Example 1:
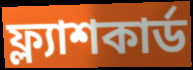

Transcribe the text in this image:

ফ্ল্যাশকার্ড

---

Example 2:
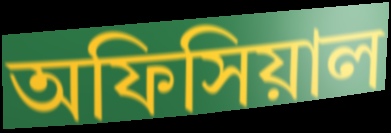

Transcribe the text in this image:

অফিসিয়াল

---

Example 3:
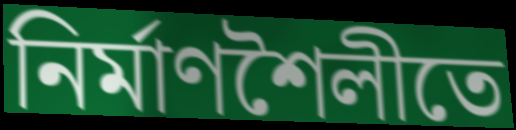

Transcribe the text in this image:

নির্মাণশৈলীতে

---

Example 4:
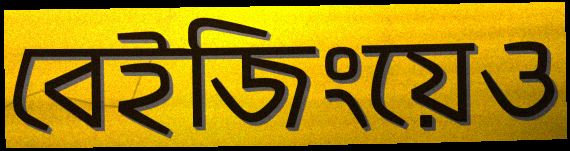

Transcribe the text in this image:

বেইজিংয়েও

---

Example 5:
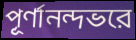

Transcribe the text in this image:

পূর্ণানন্দভরে